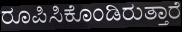
ರೂಪಿಸಿಕೊಂಡಿರುತ್ತಾರೆ